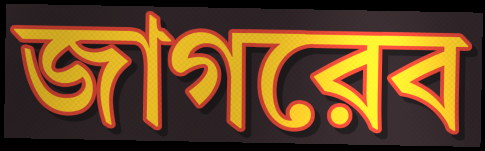
জাগরেব